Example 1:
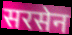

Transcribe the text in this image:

सरसेन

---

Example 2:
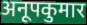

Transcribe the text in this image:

अनूपकुमार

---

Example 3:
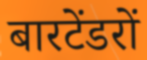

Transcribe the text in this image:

बारटेंडरों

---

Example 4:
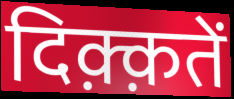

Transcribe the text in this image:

दिक़्क़तें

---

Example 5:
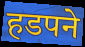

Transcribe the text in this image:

हडपने